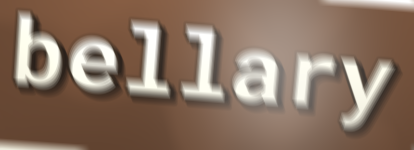
bellary